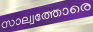
സാല്വത്തോരെ